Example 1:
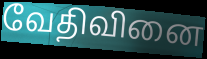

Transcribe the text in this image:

வேதிவினை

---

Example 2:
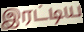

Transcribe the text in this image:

இரட்டிய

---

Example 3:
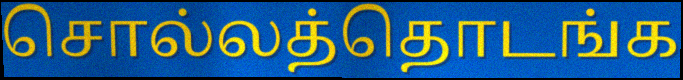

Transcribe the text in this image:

சொல்லத்தொடங்க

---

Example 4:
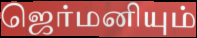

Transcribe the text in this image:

ஜெர்மனியும்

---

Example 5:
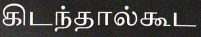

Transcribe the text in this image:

கிடந்தால்கூட